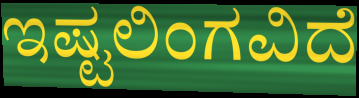
ಇಷ್ಟಲಿಂಗವಿದೆ